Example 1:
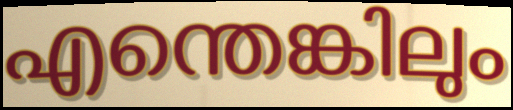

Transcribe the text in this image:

എന്തെങ്കിലും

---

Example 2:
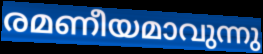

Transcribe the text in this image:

രമണീയമാവുന്നു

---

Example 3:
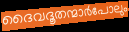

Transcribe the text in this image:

ദൈവദൂതന്മാർപോലും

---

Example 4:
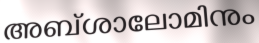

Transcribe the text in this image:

അബ്ശാലോമിനും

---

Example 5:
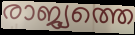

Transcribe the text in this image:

രാജ്യത്തെ